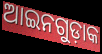
ଆଇନଗୁଡ଼ାକ